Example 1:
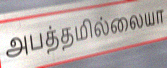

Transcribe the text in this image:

அபத்தமில்லையா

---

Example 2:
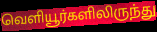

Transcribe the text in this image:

வெளியூர்களிலிருந்து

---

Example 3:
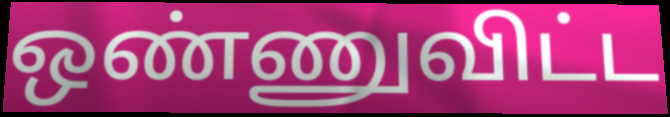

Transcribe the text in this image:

ஒண்ணுவிட்ட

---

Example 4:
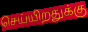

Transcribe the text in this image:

செய்யிறதுக்கு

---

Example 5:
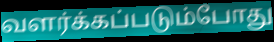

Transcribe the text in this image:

வளர்க்கப்படும்போது